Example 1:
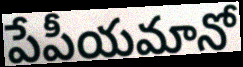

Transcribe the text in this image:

పేపీయమానో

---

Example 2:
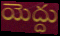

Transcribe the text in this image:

యెద్దు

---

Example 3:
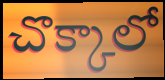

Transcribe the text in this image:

చొక్కాలో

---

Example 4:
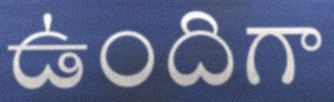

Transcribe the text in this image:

ఉందిగా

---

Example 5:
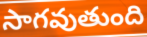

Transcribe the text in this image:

సాగవుతుంది